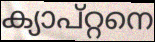
ക്യാപ്റ്റനെ